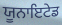
ਯੂਨਾਇਟੇਡ